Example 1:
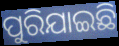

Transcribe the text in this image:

ପୁରିଯାଇଛି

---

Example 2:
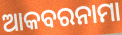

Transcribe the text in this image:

ଆକବରନାମା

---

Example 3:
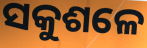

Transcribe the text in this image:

ସକୁଶଳେ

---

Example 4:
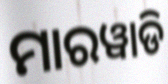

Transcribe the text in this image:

ମାରୱାଡି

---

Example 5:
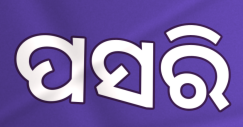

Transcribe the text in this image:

ପସରି